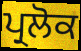
ਪ੍ਰਲੋਕ